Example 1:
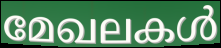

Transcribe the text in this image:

മേഖലകൾ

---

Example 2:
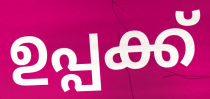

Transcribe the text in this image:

ഉപ്പക്ക്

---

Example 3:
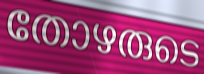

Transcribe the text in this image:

തോഴരുടെ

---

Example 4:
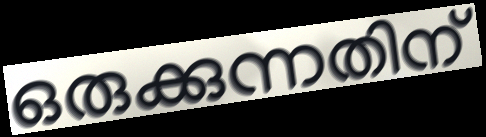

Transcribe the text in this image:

ഒരുക്കുന്നതിന്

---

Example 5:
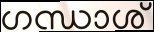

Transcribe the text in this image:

ഗന്ധാശ്